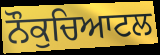
ਨੌਕੁਚਿਆਟਲ